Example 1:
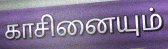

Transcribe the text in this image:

காசினையும்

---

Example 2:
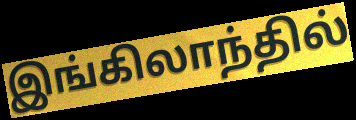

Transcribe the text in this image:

இங்கிலாந்தில்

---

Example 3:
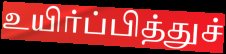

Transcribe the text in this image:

உயிர்ப்பித்துச்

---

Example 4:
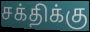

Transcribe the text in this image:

சக்திக்கு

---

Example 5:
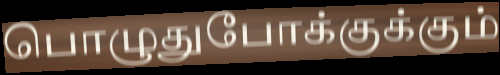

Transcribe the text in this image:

பொழுதுபோக்குக்கும்